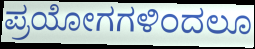
ಪ್ರಯೋಗಗಳಿಂದಲೂ